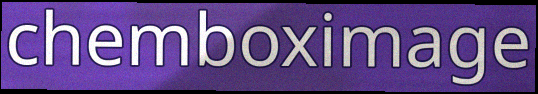
chemboximage